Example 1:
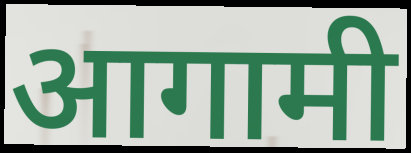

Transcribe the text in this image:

आगामी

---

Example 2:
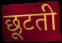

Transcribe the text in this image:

छूटती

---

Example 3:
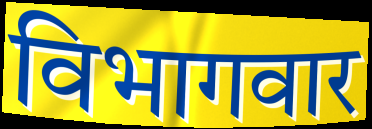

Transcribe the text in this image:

विभागवार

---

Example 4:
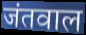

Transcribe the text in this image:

जंतवाल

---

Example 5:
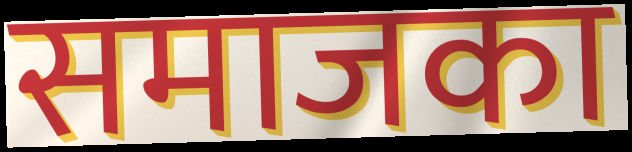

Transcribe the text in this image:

समाजका